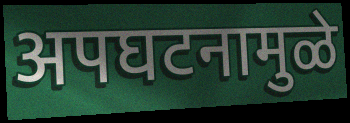
अपघटनामुळे